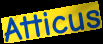
Atticus